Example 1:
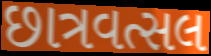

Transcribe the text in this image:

છાત્રવત્સલ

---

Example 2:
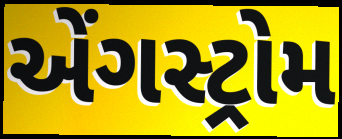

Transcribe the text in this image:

એંગસ્ટ્રોમ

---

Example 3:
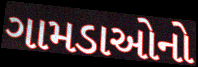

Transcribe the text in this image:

ગામડાઓનો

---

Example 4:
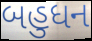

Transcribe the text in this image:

બહુધન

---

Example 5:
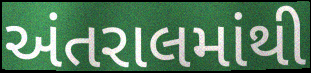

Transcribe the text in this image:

અંતરાલમાંથી